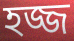
হজ্জ